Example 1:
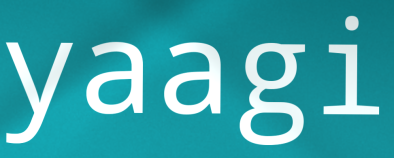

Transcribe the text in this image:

yaagi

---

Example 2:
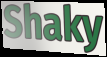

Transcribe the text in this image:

Shaky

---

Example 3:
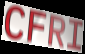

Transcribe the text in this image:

CFRI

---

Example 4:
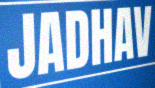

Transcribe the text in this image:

JADHAV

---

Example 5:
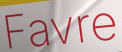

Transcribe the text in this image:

Favre